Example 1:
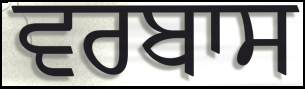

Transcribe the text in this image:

ਵਰਬਾਸ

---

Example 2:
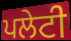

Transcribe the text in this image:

ਪਲੇਟੀ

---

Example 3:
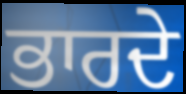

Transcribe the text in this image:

ਭਾਰਦੇ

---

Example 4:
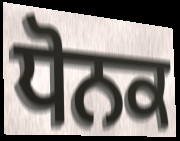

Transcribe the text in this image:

ਧੋਨਕ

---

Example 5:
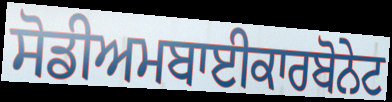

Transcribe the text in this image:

ਸੋਡੀਅਮਬਾਈਕਾਰਬੋਨੇਟ